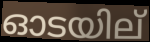
ഓടയില്